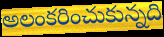
అలంకరించుకున్నది